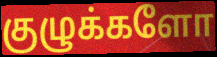
குழுக்களோ